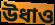
উধাও